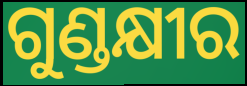
ଗୁଣ୍ଡକ୍ଷୀର